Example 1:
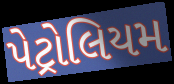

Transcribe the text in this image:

પેટ્રોલિયમ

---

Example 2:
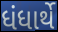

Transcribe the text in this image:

ધંધાર્થે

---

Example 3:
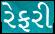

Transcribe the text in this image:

રેફરી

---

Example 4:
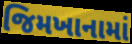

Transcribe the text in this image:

જિમખાનામાં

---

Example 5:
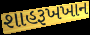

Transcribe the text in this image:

શાહરૂખખાન